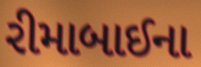
રીમાબાઈના